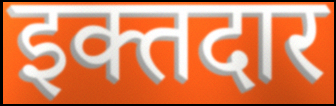
इक्तदार